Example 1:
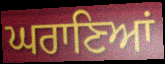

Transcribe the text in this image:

ਘਰਾਣਿਆਂ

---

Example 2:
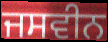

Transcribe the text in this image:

ਜਸਵੀਨ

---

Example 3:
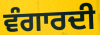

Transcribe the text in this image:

ਵੰਗਾਰਦੀ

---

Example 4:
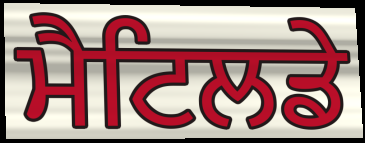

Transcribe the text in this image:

ਮੈਟਿਲਡੇ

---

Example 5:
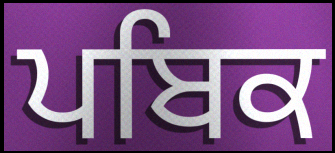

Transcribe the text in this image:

ਪਬਿਕ